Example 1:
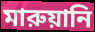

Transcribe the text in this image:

মারুয়ানি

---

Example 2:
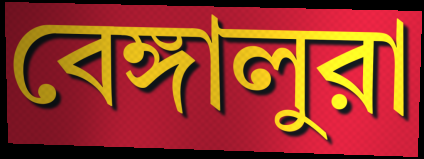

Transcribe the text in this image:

বেঙ্গালুরা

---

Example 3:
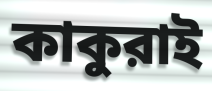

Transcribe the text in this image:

কাকুরাই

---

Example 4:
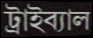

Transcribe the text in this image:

ট্রাইব্যাল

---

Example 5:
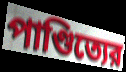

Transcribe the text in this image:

পাণ্ডিত্যের